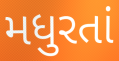
મધુરતાં